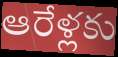
ఆరేళ్లకు